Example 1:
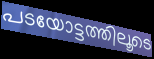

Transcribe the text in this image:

പടയോട്ടത്തിലൂടെ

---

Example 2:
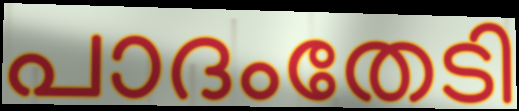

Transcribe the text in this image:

പാദംതേടി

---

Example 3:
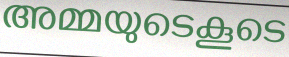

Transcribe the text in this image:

അമ്മയുടെകൂടെ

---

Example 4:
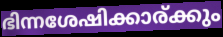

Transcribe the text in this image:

ഭിന്നശേഷിക്കാര്ക്കും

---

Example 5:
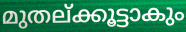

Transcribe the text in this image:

മുതല്ക്കൂട്ടാകും